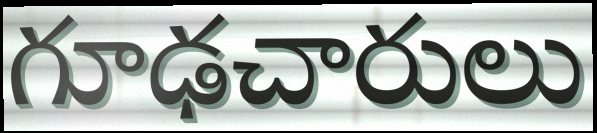
గూఢచారులు